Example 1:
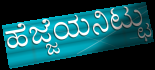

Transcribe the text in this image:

ಹೆಜ್ಜೆಯನಿಟ್ಟು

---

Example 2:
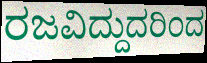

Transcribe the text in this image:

ರಜವಿದ್ದುದರಿಂದ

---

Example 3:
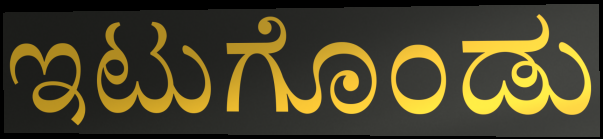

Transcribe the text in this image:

ಇಟುಗೊಂಡು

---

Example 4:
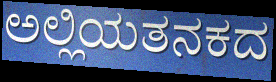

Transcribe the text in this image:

ಅಲ್ಲಿಯತನಕದ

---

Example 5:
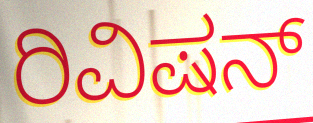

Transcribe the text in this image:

ರಿವಿಷನ್